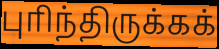
புரிந்திருக்கக்